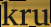
kru